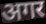
अगर